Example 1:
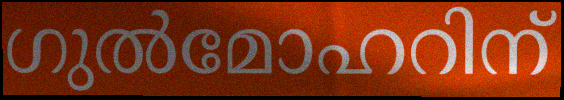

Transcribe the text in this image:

ഗുൽമോഹറിന്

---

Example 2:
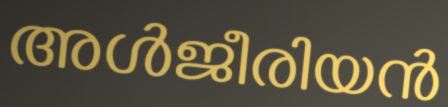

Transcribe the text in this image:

അൾജീരിയൻ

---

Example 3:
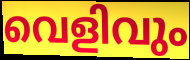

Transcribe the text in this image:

വെളിവും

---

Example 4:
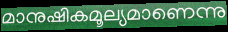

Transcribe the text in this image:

മാനുഷികമൂല്യമാണെന്നു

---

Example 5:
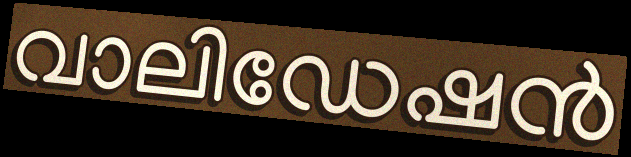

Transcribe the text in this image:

വാലിഡേഷൻ